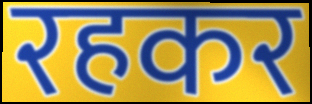
रहकर